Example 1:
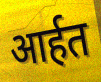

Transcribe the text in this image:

आर्हत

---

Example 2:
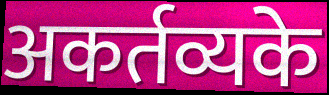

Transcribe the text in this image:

अकर्तव्यके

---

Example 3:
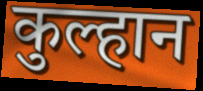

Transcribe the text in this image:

कुल्हान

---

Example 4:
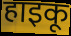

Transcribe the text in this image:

हाइकू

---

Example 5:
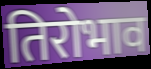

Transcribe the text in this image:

तिरोभाव